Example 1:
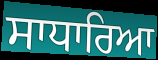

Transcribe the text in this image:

ਸਾਧਾਰਿਆ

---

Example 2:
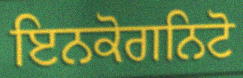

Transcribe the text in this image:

ਇਨਕੋਗਨਿਟੋ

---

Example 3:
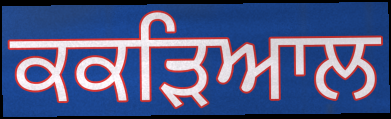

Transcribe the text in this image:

ਕਕੜਿਆਲ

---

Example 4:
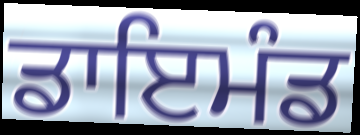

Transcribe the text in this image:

ਡਾਇਮੰਡ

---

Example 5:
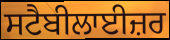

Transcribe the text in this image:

ਸਟੈਬੀਲਾਈਜ਼ਰ